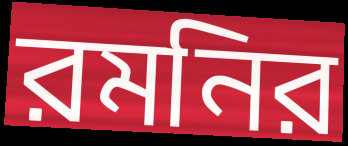
রমনির